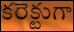
కరెక్టుగా